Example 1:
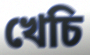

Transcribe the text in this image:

খেচি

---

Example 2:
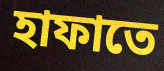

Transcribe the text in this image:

হাফাতে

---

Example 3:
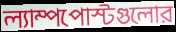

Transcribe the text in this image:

ল্যাম্পপোস্টগুলোর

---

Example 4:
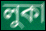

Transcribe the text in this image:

লুকা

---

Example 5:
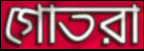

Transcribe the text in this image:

গোতরা